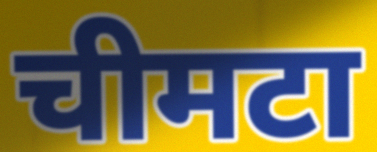
चीमटा